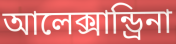
আলেক্সান্ড্রিনা